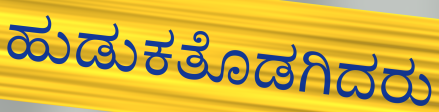
ಹುಡುಕತೊಡಗಿದರು